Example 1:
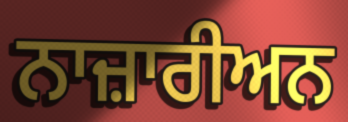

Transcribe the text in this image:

ਨਾਜ਼ਾਰੀਅਨ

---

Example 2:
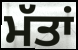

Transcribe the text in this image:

ਮੱਤਾਂ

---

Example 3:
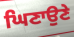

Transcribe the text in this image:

ਘਿਣਾਉਣੇ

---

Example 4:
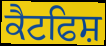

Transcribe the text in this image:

ਕੈਟਫਿਸ਼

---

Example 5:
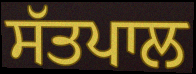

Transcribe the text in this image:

ਸੱਤਪਾਲ